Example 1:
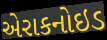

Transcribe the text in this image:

એરાકનોઇડ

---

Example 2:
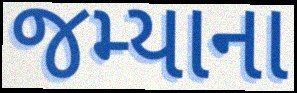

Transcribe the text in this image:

જમ્યાના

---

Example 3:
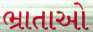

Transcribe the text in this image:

ભ્રાતાઓ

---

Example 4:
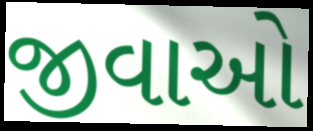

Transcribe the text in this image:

જીવાઓ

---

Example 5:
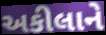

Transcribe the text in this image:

અકીલાને